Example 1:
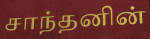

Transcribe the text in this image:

சாந்தனின்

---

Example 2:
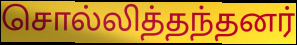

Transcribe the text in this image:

சொல்லித்தந்தனர்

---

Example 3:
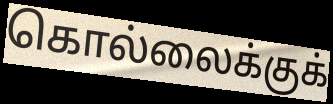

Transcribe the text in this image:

கொல்லைக்குக்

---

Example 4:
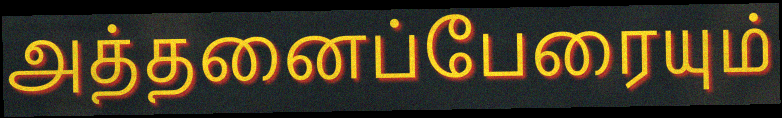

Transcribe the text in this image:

அத்தனைப்பேரையும்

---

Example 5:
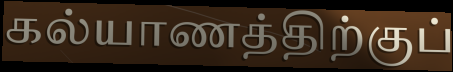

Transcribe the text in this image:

கல்யாணத்திற்குப்